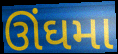
ઊંઘમા